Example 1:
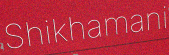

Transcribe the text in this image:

Shikhamani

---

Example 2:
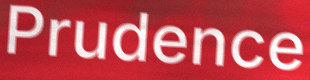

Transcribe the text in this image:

Prudence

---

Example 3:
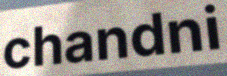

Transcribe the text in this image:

chandni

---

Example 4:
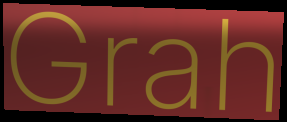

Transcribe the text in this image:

Grah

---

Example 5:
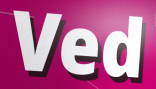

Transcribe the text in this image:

Ved